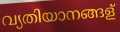
വ്യതിയാനങ്ങള്